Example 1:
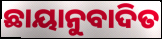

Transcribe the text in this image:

ଛାୟାନୁବାଦିତ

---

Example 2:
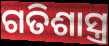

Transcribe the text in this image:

ଗତିଶାସ୍ତ୍ର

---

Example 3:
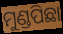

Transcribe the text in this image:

ମୁଣ୍ଡପିଛା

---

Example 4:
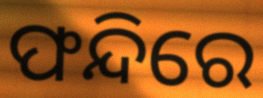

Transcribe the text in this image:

ଫନ୍ଦିରେ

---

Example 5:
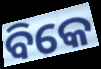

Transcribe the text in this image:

ବିକେ